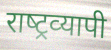
राष्‍ट्रव्‍यापी